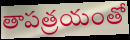
తాపత్రయంతో